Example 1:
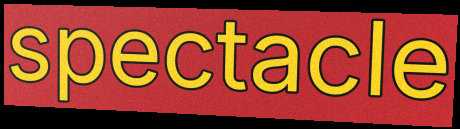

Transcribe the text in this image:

spectacle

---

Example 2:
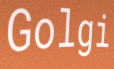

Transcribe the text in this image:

Golgi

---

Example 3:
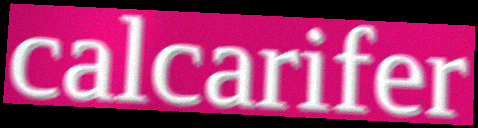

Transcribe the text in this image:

calcarifer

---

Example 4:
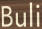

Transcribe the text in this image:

Buli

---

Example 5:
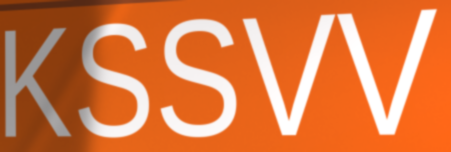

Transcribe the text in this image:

KSSVV